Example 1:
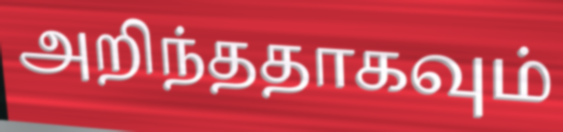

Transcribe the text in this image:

அறிந்ததாகவும்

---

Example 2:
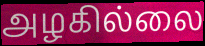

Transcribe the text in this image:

அழகில்லை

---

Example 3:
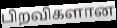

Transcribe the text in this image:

பிறவிகளான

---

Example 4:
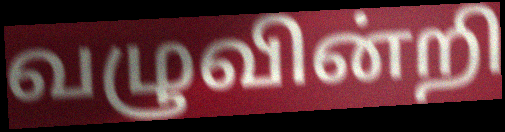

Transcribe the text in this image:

வழுவின்றி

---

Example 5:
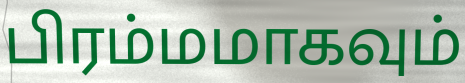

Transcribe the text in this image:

பிரம்மமாகவும்